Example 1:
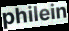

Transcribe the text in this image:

philein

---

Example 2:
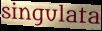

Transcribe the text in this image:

singulata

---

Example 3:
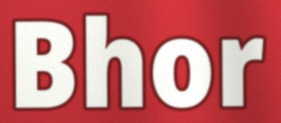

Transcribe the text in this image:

Bhor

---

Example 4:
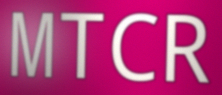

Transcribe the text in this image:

MTCR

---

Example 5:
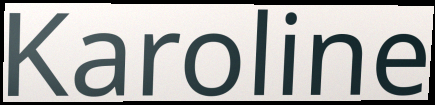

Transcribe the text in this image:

Karoline